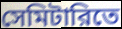
সেমিটারিতে